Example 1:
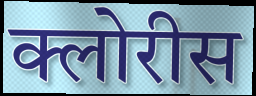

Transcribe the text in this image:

क्लोरीस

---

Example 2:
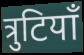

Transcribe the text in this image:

त्रुटियाँ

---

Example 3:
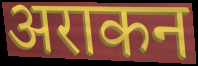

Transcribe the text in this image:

अराकन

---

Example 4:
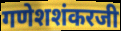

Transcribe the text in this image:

गणेशशंकरजी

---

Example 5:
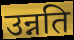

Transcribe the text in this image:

उन्नति